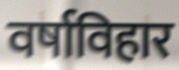
वर्षाविहार